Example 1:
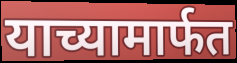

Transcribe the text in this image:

याच्यामार्फत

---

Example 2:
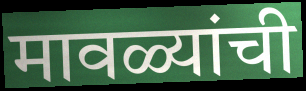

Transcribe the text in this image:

मावळ्यांची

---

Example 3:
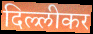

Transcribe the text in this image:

दिल्लीकर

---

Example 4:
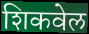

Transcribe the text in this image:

शिकवेल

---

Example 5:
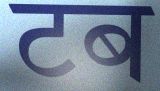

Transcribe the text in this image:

टब